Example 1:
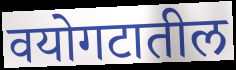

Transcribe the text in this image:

वयोगटातील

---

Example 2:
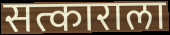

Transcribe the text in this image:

सत्काराला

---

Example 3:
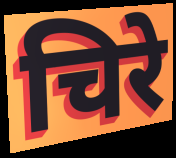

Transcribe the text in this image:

चिरे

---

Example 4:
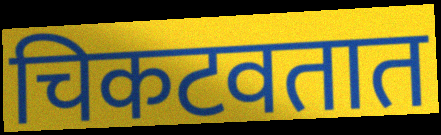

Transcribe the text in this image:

चिकटवतात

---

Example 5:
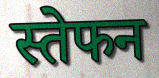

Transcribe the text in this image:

स्तेफन